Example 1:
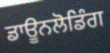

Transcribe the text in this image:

ਡਾਊਨਲੋਡਿੰਗ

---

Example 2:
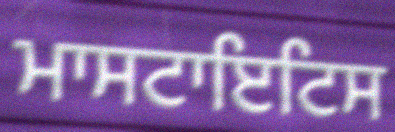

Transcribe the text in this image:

ਮਾਸਟਾਇਟਿਸ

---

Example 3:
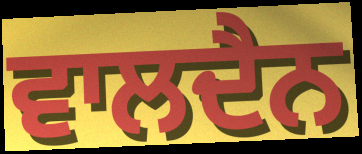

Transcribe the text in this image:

ਵਾਲਦੈਨ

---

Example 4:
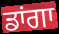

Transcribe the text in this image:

ਡਾਂਗਾ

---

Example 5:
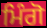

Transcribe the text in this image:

ਮਿੰਗੋ